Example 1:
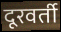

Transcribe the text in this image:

दूरवर्ती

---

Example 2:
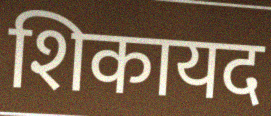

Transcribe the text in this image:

शिकायद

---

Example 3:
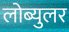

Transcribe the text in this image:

लोब्युलर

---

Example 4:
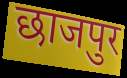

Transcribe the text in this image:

छाजपुर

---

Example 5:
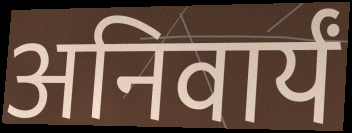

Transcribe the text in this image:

अनिवार्यं